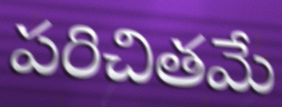
పరిచితమే